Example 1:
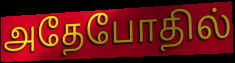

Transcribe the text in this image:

அதேபோதில்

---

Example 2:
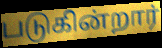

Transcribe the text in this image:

படுகின்றார்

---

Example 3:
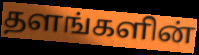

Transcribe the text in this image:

தளங்களின்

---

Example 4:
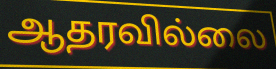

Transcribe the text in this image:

ஆதரவில்லை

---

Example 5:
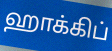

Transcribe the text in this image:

ஹாக்கிப்